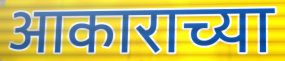
आकाराच्या